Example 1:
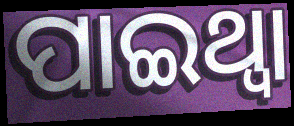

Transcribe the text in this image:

ପାଇଥ୍ବା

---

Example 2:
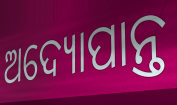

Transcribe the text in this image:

ଅଦ୍ୟୋପାନ୍ତ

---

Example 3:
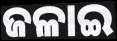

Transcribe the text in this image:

ଜଳାଇ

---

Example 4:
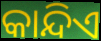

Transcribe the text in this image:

କାନ୍ଦିଏ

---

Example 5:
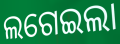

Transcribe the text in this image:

ଲଗେଇଲା